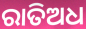
ରାତିଅଧ